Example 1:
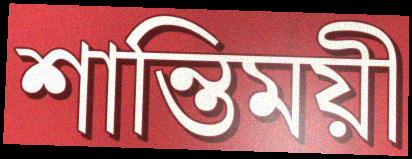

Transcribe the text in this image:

শান্তিময়ী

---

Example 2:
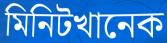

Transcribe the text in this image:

মিনিটখানেক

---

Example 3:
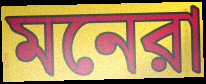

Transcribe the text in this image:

মনেরা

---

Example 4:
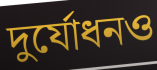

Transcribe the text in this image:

দুর্যোধনও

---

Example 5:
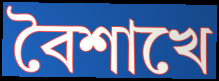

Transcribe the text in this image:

বৈশাখে